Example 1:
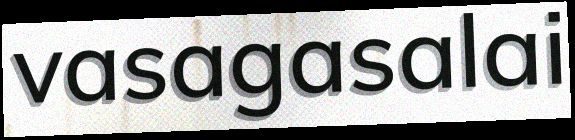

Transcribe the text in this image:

vasagasalai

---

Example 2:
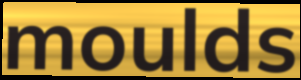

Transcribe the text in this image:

moulds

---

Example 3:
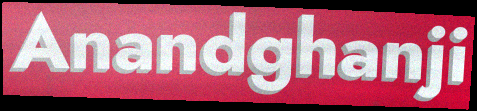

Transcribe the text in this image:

Anandghanji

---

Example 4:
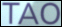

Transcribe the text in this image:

TAO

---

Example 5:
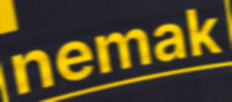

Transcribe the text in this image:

nemak